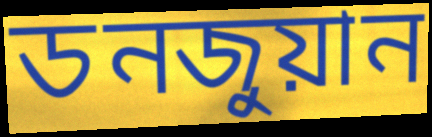
ডনজুয়ান